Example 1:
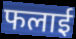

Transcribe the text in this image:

फलाई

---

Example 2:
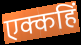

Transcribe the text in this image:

एक्कहिं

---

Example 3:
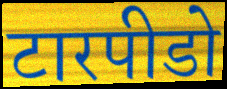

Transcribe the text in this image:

टारपीडो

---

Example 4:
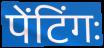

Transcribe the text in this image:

पेंटिंगः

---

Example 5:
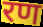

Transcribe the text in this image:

रण